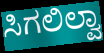
ಸಿಗಲಿಲ್ವಾ